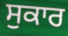
ਸੁਕਾਰ